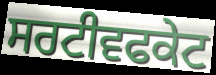
ਸਰਟੀਵਫਕੇਟ